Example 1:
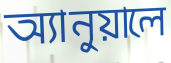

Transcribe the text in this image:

অ্যানুয়ালে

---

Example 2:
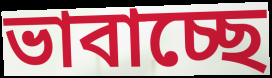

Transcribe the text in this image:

ভাবাচ্ছে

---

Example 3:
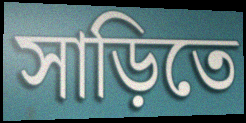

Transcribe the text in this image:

সাড়িতে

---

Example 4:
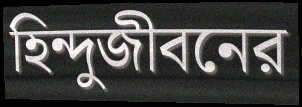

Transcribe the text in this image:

হিন্দুজীবনের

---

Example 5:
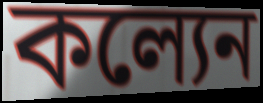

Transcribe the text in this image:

কল্যেন